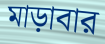
মাড়াবার